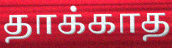
தாக்காத